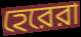
হেরেরা